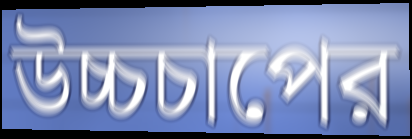
উচ্চচাপের